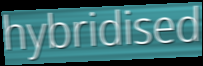
hybridised